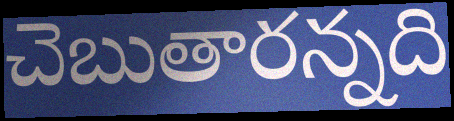
చెబుతారన్నది